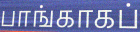
பாங்காகப்